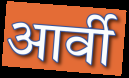
आर्वी